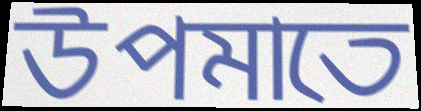
উপমাতে